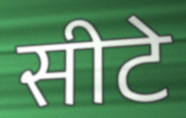
सीटे